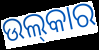
ଉଲ୍‌କାର